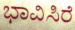
ಭಾವಿಸಿರೆ